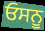
ਓਸਨੂ